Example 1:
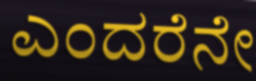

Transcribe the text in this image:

ಎಂದರೆನೇ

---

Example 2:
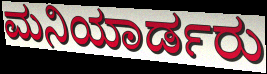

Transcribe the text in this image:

ಮನಿಯಾರ್ಡರು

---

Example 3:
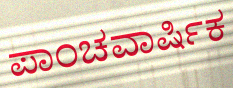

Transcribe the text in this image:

ಪಾಂಚವಾರ್ಷಿಕ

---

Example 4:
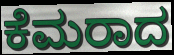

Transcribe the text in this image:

ಕೆಮರಾದ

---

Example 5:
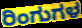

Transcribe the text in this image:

ರಿಂಗುಗಳ